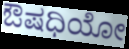
ಔಷಧಿಯೋ